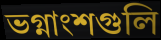
ভগ্নাংশগুলি